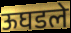
ऊघडले